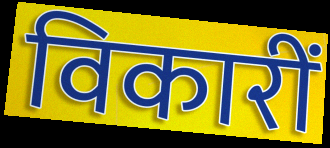
विकारीं